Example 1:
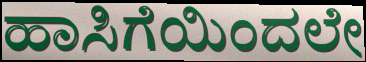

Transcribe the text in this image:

ಹಾಸಿಗೆಯಿಂದಲೇ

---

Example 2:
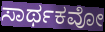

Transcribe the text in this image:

ಸಾರ್ಥಕವೋ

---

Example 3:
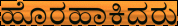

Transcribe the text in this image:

ಹೊರಹಾಕಿದರು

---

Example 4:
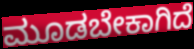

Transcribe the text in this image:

ಮೂಡಬೇಕಾಗಿದೆ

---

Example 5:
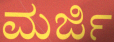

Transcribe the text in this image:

ಮರ್ಜಿ